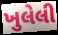
ખુલેલી